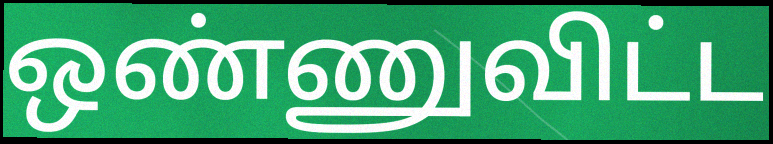
ஒண்ணுவிட்ட